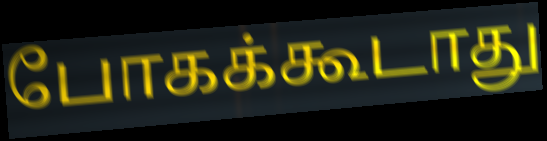
போகக்கூடாது